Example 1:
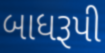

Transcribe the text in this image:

બાધરૂપી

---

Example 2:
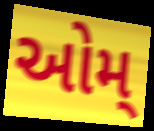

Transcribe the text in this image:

ઓમ્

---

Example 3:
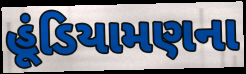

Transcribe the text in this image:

હૂંડિયામણના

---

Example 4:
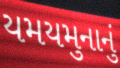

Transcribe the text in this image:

યમયમુનાનું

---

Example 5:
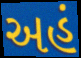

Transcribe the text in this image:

અહં